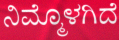
ನಿಮ್ಮೊಳಗಿದೆ